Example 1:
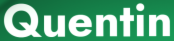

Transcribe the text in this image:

Quentin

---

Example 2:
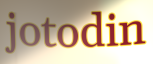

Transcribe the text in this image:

jotodin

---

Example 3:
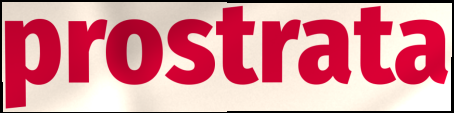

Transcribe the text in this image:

prostrata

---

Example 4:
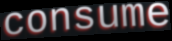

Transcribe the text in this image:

consume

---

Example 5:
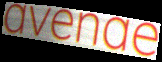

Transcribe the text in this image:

avenae